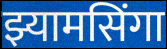
झ्यामसिंगा